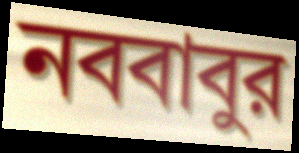
নববাবুর